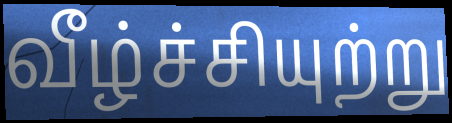
வீழ்ச்சியுற்று